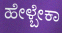
ಹೇಳ್ಬೇಕಾ